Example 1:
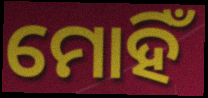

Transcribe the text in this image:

ମୋହିଁ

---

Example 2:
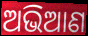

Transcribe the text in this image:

ଅଭିଆଣ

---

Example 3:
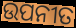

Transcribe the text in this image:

ଉପନୀତ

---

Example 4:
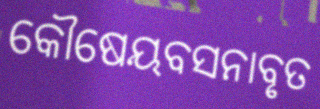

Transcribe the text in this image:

କୌଷେୟବସନାବୃତ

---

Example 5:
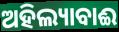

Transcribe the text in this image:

ଅହିଲ୍ୟାବାଈ